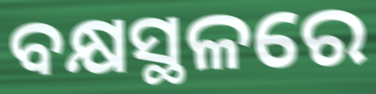
ବକ୍ଷସ୍ଥଳରେ